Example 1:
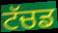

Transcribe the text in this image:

ਟੱਚਡ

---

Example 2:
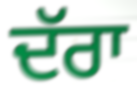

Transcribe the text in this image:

ਦੱਰਾ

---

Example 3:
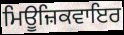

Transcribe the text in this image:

ਮਿਊਜ਼ਿਕਵਾਇਰ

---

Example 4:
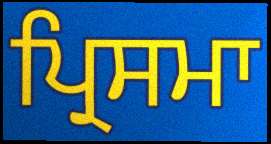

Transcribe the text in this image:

ਪ੍ਰਿਸਮਾ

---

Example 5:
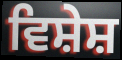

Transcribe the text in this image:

ਵਿਸ਼ੇਸ਼